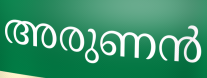
അരുണൻ